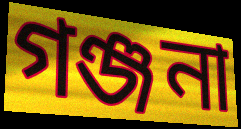
গঞ্জনা